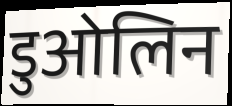
डुओलिन